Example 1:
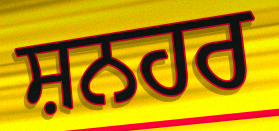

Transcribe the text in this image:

ਸ਼ਨਹਰ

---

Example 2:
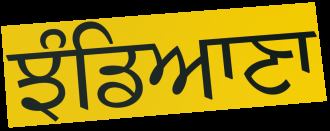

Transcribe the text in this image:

ਝੰਡਿਆਣਾ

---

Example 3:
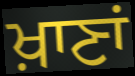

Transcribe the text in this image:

ਖ਼ਾਣਾਂ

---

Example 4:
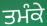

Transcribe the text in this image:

ਤਮੰਕੇ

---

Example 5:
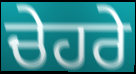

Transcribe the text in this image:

ਚੇਹਰੇ